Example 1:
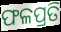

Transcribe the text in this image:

ଫଳପ୍ରତି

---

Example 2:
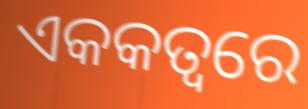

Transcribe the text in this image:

ଏକକତ୍ୱରେ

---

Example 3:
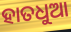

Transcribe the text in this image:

ହାତଧୁଆ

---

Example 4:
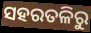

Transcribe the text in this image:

ସହରତଳିରୁ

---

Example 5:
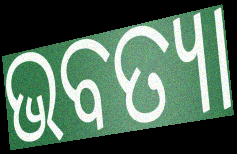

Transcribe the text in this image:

ଭବତ୍ୟା